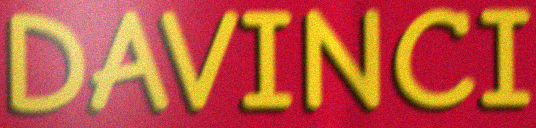
DAVINCI